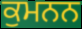
ਕੁਮਨਨ